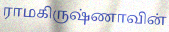
ராமகிருஷ்ணாவின்